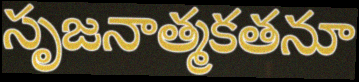
సృజనాత్మకతనూ